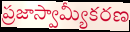
ప్రజాస్వామ్యీకరణ